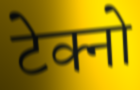
टेक्नो